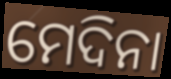
ମେଦିନା